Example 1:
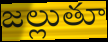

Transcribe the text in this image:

జల్లుతూ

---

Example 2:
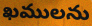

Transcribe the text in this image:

ఖములను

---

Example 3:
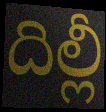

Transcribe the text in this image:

దిల్లీ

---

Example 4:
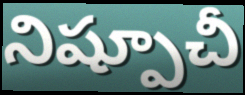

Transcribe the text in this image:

నిష్పూచీ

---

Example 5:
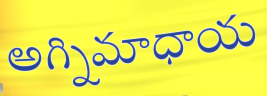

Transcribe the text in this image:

అగ్నిమాధాయ